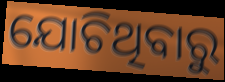
ଯୋଚିଥିବାରୁ